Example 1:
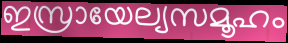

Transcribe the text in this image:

ഇസ്രായേല്യസമൂഹം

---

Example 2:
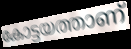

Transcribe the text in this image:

കോട്ടയത്താണ്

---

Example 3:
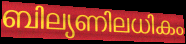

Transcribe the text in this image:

ബില്യണിലധികം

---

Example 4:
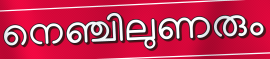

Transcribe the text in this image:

നെഞ്ചിലുണരും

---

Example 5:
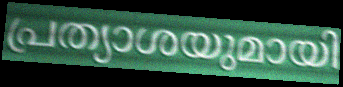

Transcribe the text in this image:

പ്രത്യാശയുമായി